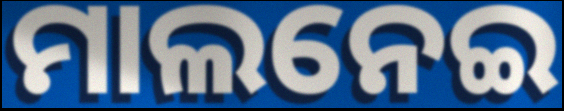
ମାଲନେଇ